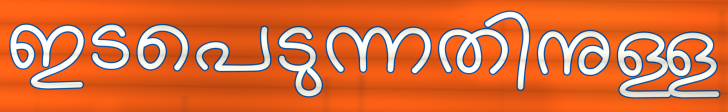
ഇടപെടുന്നതിനുള്ള